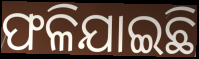
ଫଳିଯାଇଛି